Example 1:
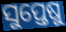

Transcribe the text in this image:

ସୁପ୍ତେଷୁ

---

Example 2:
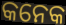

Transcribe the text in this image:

କନେକ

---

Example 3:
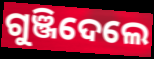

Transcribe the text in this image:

ଗୁଞ୍ଜିଦେଲେ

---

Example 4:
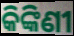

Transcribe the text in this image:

କିଙ୍କିଣୀ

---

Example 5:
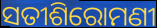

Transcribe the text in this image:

ସତୀଶିରୋମଣୀ